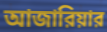
আজারিয়ার